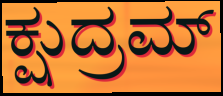
ಕ್ಷುದ್ರಮ್